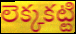
లెక్కకట్టి